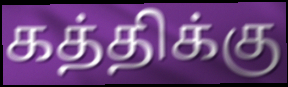
கத்திக்கு